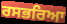
ਰਸਭਰਿਆ